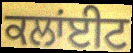
ਕਲਾਂਈਟ